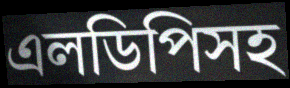
এলডিপিসহ